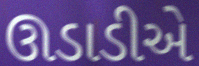
ઊડાડીએ